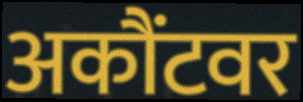
अकौंटवर